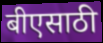
बीएसाठी